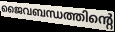
ജൈവബന്ധത്തിന്റെ